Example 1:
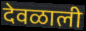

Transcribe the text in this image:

देवळाली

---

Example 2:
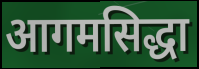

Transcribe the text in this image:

आगमसिद्धा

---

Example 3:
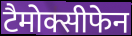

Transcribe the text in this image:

टैमोक्सीफेन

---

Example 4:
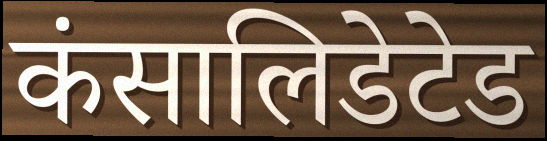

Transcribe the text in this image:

कंसालिडेटेड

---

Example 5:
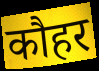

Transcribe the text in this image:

कौहर